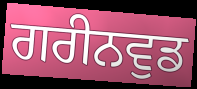
ਗਰੀਨਵੁਡ